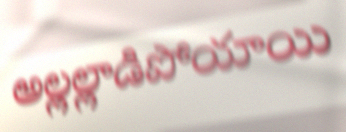
అల్లల్లాడిపోయాయి